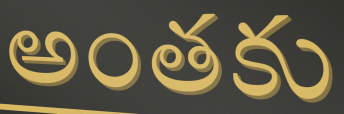
అంతకు